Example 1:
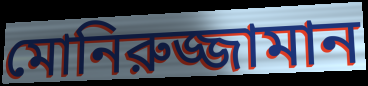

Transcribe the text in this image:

মোনিরুজ্জামান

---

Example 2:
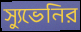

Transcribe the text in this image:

স্যুভেনির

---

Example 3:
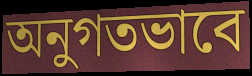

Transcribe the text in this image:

অনুগতভাবে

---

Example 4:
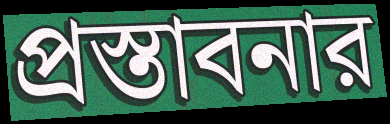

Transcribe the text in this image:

প্রস্তাবনার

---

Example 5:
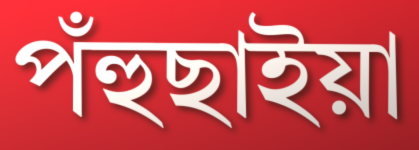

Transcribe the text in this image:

পঁহুছাইয়া